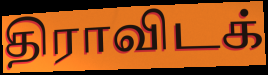
திராவிடக்